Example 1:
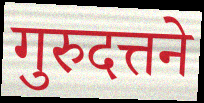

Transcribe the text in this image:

गुरुदत्तने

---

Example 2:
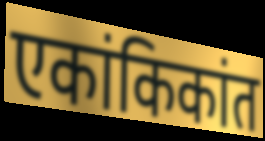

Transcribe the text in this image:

एकांकिकांत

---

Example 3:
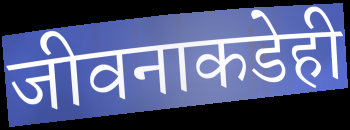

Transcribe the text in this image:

जीवनाकडेही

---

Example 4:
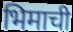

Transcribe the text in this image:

भिमाची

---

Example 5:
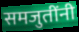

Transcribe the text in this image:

समजुतींनी